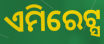
ଏମିରେଟ୍ସ